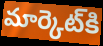
మార్కెట్‌కి